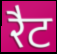
रैट